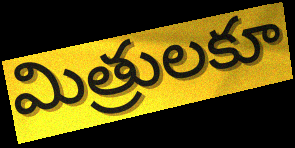
మిత్రులకూ